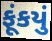
ફૂંકયું